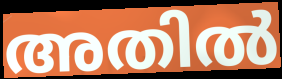
അതിൽ